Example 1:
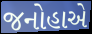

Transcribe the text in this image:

જનોહાએ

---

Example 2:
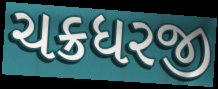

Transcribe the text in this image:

ચક્રધરજી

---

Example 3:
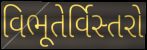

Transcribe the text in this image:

વિભૂતેર્વિસ્તરો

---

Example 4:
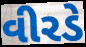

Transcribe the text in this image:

વીરડે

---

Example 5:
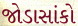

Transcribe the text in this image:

જોડાસાંકો